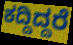
ಕದ್ದಿದ್ದರೆ